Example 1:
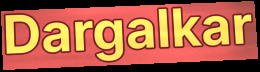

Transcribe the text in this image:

Dargalkar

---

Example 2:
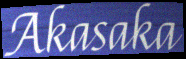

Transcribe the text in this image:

Akasaka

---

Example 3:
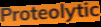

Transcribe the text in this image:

Proteolytic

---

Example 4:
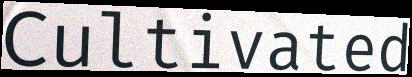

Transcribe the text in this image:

Cultivated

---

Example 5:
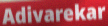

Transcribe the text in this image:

Adivarekar